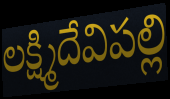
లక్ష్మిదేవిపల్లి